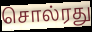
சொல்ரது